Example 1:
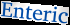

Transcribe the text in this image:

Enteric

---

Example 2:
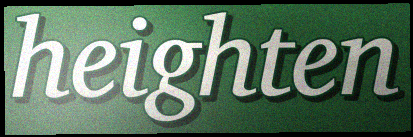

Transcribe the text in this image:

heighten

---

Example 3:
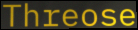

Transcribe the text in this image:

Threose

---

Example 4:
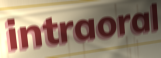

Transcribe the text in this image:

intraoral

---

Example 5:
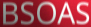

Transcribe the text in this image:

BSOAS